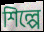
শিল্পে